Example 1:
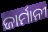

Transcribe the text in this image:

ଜାର୍ମାନୀ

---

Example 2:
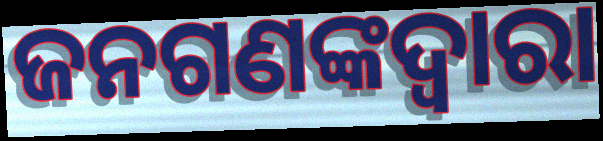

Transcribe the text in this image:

ଜନଗଣଙ୍କଦ୍ୱାରା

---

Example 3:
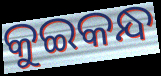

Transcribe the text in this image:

କୁଇକନ୍ଧ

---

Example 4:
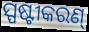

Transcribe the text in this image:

ସ୍ପଷ୍ଟୀକରଣ୍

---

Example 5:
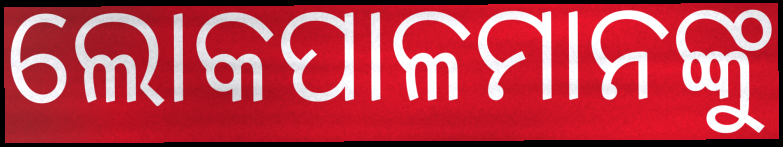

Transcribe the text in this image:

ଲୋକପାଳମାନଙ୍କୁ